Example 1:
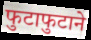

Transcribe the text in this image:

फुटाफुटाने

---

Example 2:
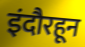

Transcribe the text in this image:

इंदौरहून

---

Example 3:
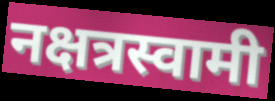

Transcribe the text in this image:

नक्षत्रस्वामी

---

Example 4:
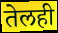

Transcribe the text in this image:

तेलही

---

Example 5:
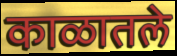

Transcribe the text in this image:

काळातले